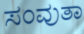
ಸಂವುತಾ